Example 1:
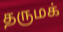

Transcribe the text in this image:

தருமக்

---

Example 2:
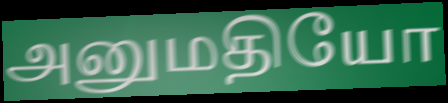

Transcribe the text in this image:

அனுமதியோ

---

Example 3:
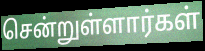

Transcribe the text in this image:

சென்றுள்ளார்கள்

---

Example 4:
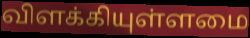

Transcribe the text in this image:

விளக்கியுள்ளமை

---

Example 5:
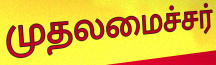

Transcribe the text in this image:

முதலமைச்சர்